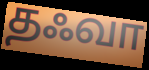
தஃவா